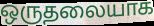
ஒருதலையாக